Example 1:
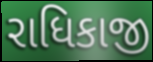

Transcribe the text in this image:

રાધિકાજી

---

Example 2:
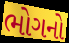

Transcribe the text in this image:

ભોગનો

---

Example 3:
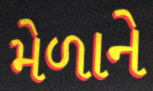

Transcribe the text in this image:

મેળાને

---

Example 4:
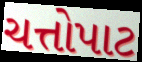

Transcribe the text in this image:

ચત્તોપાટ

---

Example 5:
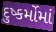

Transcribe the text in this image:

દુષ્કર્મોમાં